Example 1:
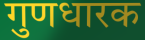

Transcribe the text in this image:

गुणधारक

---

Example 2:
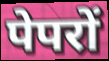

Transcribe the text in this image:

पेपरों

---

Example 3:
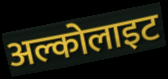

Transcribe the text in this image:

अल्कोलाइट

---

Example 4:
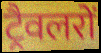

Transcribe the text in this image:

ट्रैवलरों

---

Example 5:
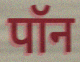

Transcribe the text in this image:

पॉन